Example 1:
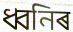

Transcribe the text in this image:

ধ্বনিৰ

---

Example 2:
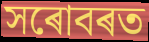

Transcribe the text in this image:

সৰোবৰত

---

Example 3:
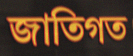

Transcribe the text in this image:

জাতিগত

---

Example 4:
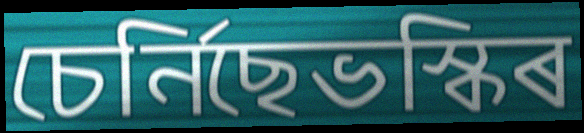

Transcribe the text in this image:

চেৰ্নিছেভস্কিৰ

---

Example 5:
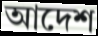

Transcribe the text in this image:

আদেশ